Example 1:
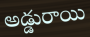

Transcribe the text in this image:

అడ్డురాయి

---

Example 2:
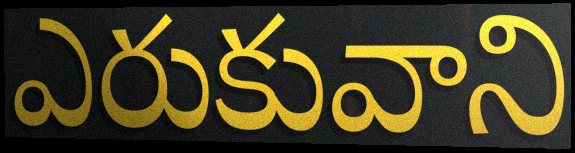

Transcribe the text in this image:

ఎరుకువాని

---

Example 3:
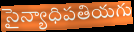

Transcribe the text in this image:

సైన్యాధిపతియగు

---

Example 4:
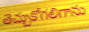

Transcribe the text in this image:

తెచ్చుకోగలిగాను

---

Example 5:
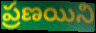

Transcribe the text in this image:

ప్రణయిని